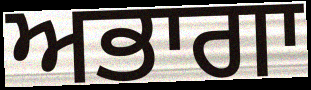
ਅਭਾਗਾ